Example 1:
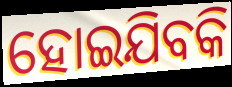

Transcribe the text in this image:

ହୋଇଯିବକି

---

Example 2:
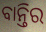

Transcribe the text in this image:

ବାନ୍ତିର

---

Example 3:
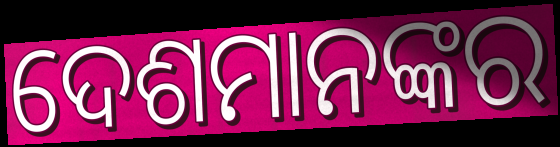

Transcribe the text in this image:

ଦେଶମାନଙ୍କର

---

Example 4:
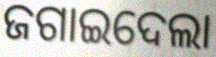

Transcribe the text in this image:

ଜଗାଇଦେଲା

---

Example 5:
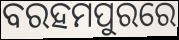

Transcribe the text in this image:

ବରହମପୁରରେ